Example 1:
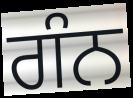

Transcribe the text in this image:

ਗੰਨ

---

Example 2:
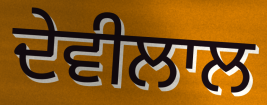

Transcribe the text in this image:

ਦੇਵੀਲਾਲ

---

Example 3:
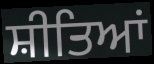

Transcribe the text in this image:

ਸ਼ੀਤਿਆਂ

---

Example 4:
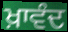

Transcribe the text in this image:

ਖ਼ਾਵੰਦ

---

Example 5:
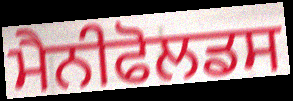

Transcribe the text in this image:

ਮੈਨੀਫੋਲਡਸ